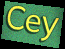
Cey